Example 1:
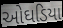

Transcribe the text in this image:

ઓઘડિયા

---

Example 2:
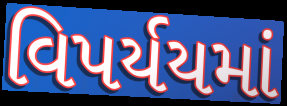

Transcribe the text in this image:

વિપર્યયમાં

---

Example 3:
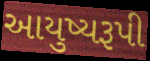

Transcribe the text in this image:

આયુષ્યરૂપી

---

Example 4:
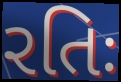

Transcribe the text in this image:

રતિઃ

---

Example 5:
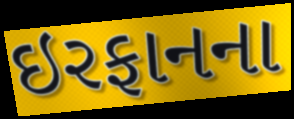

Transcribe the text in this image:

ઇરફાનના